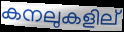
കനലുകളില്